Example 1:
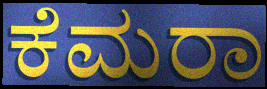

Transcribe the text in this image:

ಕೆಮರಾ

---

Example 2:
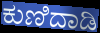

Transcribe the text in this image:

ಕುಣಿದಾಡಿ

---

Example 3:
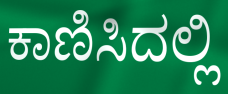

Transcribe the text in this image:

ಕಾಣಿಸಿದಲ್ಲಿ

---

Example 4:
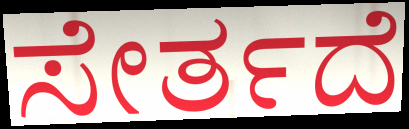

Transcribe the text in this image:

ಸೇರ್ತದೆ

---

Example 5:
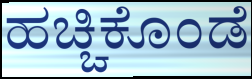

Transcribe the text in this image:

ಹಚ್ಚಿಕೊಂಡೆ